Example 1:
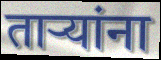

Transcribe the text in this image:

तार्‍यांना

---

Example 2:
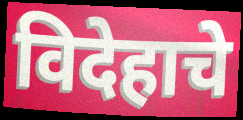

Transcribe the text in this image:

विदेहाचे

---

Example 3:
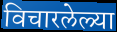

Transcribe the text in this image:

विचारलेल्या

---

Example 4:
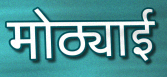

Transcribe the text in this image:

मोठ्याई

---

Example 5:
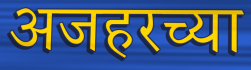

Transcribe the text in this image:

अजहरच्या